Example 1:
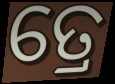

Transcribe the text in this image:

ତ୍ରେ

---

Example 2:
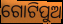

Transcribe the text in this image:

ଗୋଟିପୁଅ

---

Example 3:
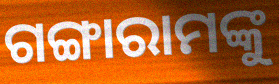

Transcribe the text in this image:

ଗଙ୍ଗାରାମଙ୍କୁ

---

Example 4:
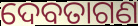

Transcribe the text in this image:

ଦେବତାଗଣ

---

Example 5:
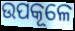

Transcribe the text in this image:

ଉପକୂଳେ